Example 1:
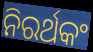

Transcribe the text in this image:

ନିରର୍ଥକଂ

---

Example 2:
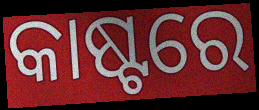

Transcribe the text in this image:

କାଷ୍ଟରେ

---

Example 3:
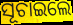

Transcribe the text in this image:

ସୂଚାଇଲେ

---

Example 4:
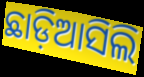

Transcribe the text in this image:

ଛାଡ଼ିଆସିଲି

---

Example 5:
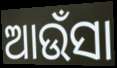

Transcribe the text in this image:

ଆଉଁସା